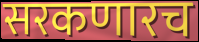
सरकणारच